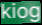
kiog